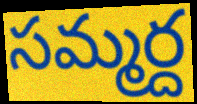
సమ్మర్ద